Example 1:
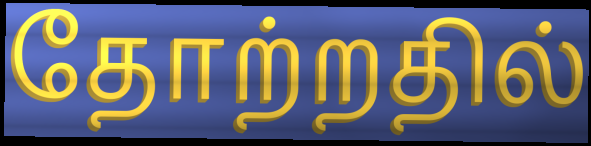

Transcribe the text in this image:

தோற்றதில்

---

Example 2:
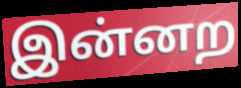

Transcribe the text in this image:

இன்னற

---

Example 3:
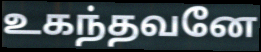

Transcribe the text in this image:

உகந்தவனே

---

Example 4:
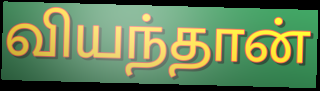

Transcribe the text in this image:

வியந்தான்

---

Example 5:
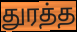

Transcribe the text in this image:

துரத்த